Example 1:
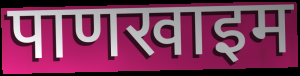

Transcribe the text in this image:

पाणखाइम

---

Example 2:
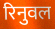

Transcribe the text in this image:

रिनुवल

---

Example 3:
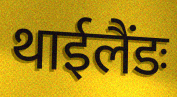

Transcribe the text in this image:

थाईलैंडः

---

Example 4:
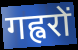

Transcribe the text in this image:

गह्वरों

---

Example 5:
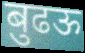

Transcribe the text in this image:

बुढऊ